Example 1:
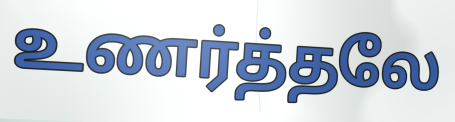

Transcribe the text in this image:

உணர்த்தலே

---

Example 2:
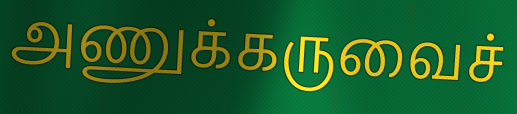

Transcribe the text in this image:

அணுக்கருவைச்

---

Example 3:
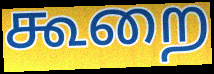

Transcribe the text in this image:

கூறை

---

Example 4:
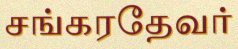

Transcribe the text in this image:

சங்கரதேவர்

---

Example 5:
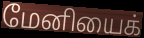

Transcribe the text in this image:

மேனியைக்